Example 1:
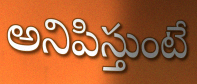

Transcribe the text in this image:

అనిపిస్తుంటే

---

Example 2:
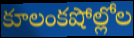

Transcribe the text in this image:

కూలంకషోల్లోల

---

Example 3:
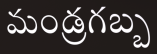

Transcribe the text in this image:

మండ్రగబ్బ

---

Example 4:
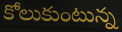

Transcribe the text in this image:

కోలుకుంటున్న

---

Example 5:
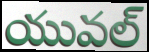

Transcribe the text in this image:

యువల్